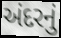
અંદરનું